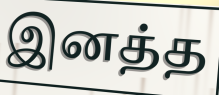
இனத்த